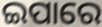
ଇପାରେ